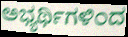
ಅಭ್ಯರ್ಥಿಗಳಿಂದ